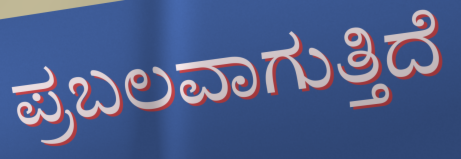
ಪ್ರಬಲವಾಗುತ್ತಿದೆ